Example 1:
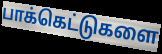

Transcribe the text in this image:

பாக்கெட்டுகளை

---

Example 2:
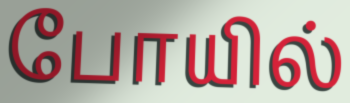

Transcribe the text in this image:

போயில்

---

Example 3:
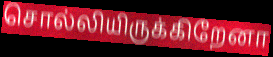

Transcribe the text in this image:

சொல்லியிருக்கிறேனா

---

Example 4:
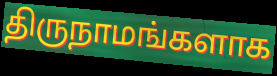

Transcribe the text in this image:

திருநாமங்களாக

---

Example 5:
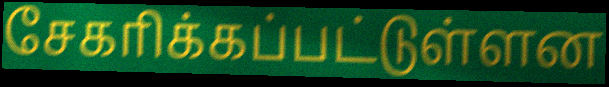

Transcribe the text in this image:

சேகரிக்கப்பட்டுள்ளன